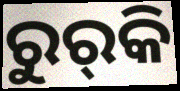
ରୁର୍‍କି